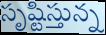
సృష్టిస్తున్న